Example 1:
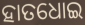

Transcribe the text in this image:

ହାତଧୋଇ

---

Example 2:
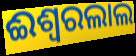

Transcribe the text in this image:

ଈଶ୍ଵରଲାଲ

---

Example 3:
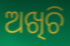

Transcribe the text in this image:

ଅଖିଚି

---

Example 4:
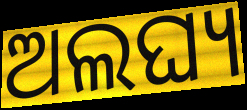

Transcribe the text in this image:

ଅଲଘ୍ୟ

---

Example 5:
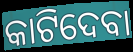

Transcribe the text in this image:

କାଟିଦେବା